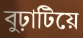
বুঢ়াটিয়ে